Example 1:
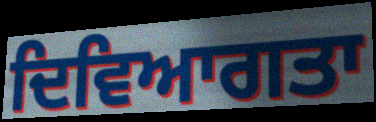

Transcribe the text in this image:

ਦਿਵਿਆਗਤਾ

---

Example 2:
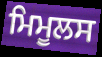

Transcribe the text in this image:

ਮਿਮੂਲਸ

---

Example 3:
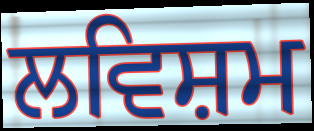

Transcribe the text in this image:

ਲਵਿਸ਼ਮ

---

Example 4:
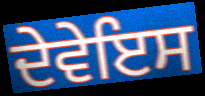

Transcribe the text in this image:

ਦੇਵੇਇਸ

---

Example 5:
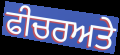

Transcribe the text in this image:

ਫੀਚਰਅਤੇ